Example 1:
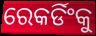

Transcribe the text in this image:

ରେକର୍ଡିଂକୁ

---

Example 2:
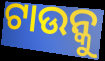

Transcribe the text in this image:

ଟାଉନ୍କୁ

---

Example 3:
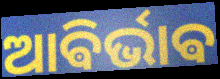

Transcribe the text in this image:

ଆଵିର୍ଭାଵ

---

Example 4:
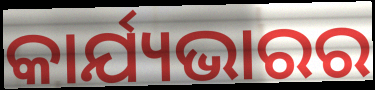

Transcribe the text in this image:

କାର୍ଯ୍ୟଭାରର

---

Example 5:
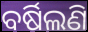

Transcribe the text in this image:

ବର୍ଷିଲଣି